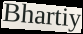
Bhartiy